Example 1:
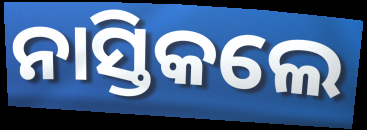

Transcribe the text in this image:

ନାସ୍ତିକଲେ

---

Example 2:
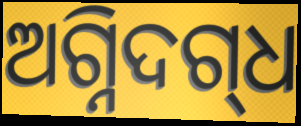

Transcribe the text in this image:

ଅଗ୍ନିଦଗ୍‌ଧ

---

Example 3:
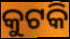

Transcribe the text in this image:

କୁଟକି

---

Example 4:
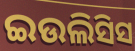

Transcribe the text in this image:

ଇଉଲିସିସ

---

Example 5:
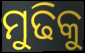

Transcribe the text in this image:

ମୁଢିକୁ